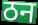
ठन